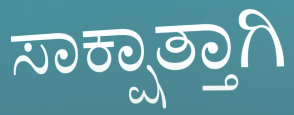
ಸಾಕ್ಷಾತ್ತಾಗಿ